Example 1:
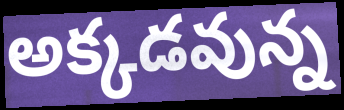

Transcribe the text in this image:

అక్కడవున్న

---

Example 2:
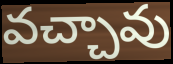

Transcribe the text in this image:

వచ్చావు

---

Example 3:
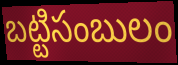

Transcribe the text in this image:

బట్టిసంబులం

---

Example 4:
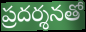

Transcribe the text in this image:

ప్రదర్శనతో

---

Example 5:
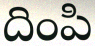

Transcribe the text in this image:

దింపి